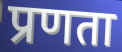
प्रणता